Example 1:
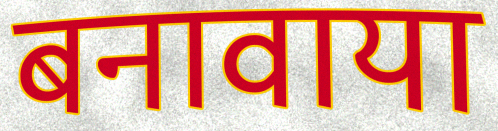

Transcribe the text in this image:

बनावाया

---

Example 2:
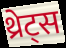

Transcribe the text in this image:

थ्रेट्स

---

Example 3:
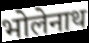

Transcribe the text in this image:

भोलेनाथ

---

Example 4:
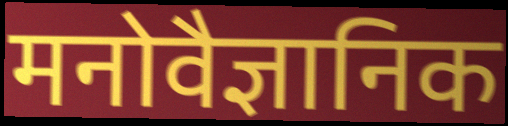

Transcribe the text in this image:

मनोवैज्ञानिक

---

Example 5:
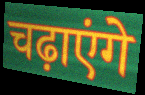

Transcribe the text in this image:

चढ़ाएंगे